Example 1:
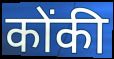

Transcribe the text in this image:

कोंकी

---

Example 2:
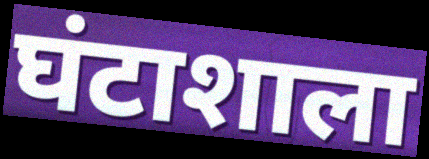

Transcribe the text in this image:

घंटाशाला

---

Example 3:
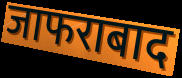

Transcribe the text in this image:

जाफराबाद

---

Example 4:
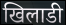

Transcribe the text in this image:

खिलाडी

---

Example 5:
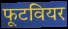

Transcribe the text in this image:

फूटवियर